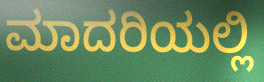
ಮಾದರಿಯಲ್ಲಿ